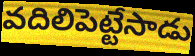
వదిలిపెట్టేసాడు